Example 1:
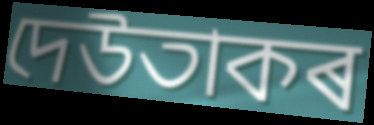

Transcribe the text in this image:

দেউতাকৰ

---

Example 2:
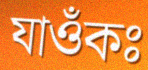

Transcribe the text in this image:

যাওঁকঃ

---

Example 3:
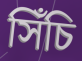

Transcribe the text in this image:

সিঁচি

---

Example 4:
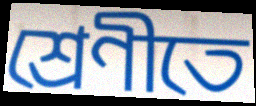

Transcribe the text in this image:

শ্ৰেণীতে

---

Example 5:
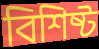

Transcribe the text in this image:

বিশিষ্ট